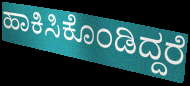
ಹಾಕಿಸಿಕೊಂಡಿದ್ದರೆ